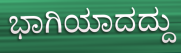
ಭಾಗಿಯಾದದ್ದು